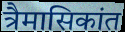
त्रैमासिकांत